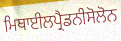
ਮਿਥਾਈਲਪ੍ਰੈਡਨੀਸੋਲੋਨ